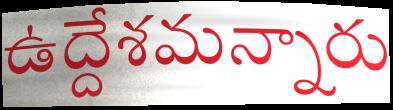
ఉద్దేశమన్నారు